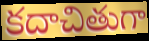
కదాచితుగా